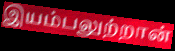
இயம்பலுற்றான்